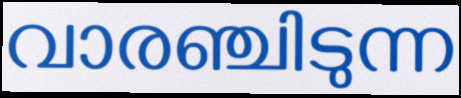
വാരഞ്ചിടുന്ന